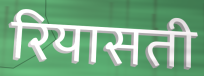
रियासती